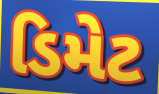
ડિમેટ